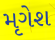
મૃગેશ